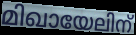
മിഖായേലിന്